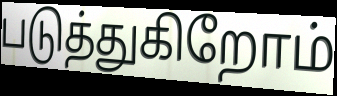
படுத்துகிறோம்